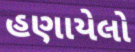
હણાયેલો